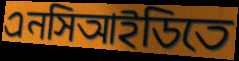
এনসিআইডিতে